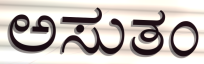
ಅಸುತಂ